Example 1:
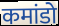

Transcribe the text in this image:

कमांडो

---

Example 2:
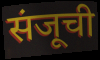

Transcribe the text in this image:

संजूची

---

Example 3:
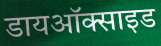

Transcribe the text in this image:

डायऑक्साइड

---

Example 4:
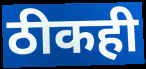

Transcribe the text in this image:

ठीकही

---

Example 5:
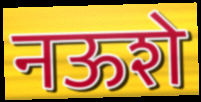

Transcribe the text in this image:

नऊशे